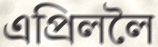
এপ্ৰিললৈ